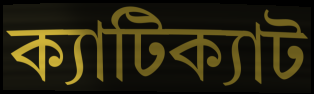
ক্যাটিক্যাট